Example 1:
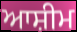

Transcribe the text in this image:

ਆਸ਼ੀਮ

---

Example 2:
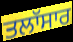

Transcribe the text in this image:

ਤਲਾੱਸਾਰ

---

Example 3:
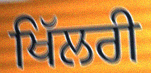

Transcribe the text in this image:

ਖਿੱਲਰੀ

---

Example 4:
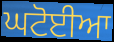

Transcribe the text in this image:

ਘਟੋਈਆ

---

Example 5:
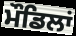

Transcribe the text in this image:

ਮੌਡਿਲਾਂ